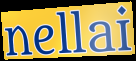
nellai